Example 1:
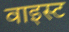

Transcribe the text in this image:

वाइस्ट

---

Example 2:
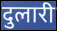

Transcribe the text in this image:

दुलारी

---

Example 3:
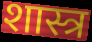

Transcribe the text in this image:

शास्त्र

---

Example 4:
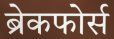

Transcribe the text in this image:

ब्रेकफोर्स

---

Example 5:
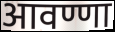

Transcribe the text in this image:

आवण्णा